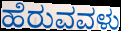
ಹೆರುವವಳು